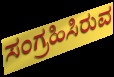
ಸಂಗ್ರಹಿಸಿರುವ